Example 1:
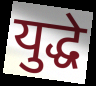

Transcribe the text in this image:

युद्धे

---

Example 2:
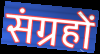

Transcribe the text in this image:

संग्रहों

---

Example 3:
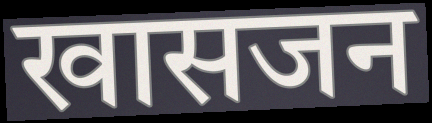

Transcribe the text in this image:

खासजन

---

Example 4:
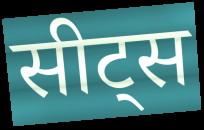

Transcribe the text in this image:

सीट्स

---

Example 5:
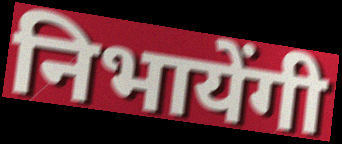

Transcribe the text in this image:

निभायेंगी